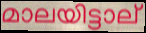
മാലയിട്ടാല്